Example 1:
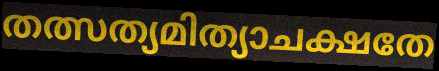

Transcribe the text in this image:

തത്സത്യമിത്യാചക്ഷതേ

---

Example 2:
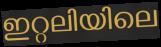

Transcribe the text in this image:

ഇറ്റലിയിലെ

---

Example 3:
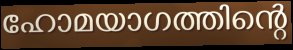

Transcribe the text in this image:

ഹോമയാഗത്തിന്റെ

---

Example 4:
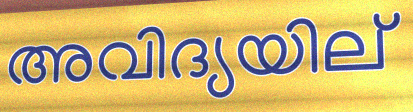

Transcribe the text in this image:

അവിദ്യയില്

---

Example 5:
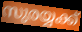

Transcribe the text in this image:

സുരയ്യക്ക്